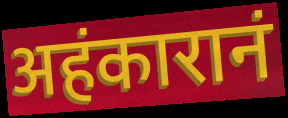
अहंकारानं